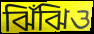
ঝিঁঝিও